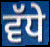
ਵੱਧੇ